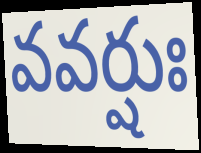
వవర్షుః